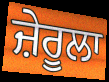
ਜ਼ੇਰੂਲਾ